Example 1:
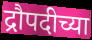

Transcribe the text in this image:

द्रौपदीच्या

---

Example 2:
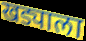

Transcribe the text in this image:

खड्याला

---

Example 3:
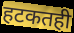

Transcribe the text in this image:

हटकतही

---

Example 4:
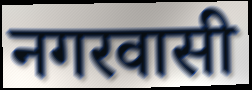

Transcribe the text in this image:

नगरवासी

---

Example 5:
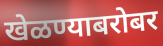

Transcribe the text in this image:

खेळण्याबरोबर